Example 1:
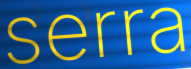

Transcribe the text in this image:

serra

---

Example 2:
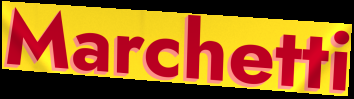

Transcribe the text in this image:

Marchetti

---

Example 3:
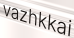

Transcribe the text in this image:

vazhkkai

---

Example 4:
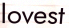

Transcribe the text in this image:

lovest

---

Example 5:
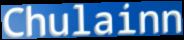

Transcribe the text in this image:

Chulainn